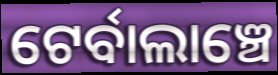
ଟେର୍ବାଲାଞ୍ଚେ